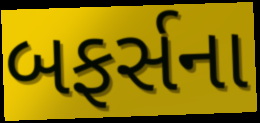
બફર્સના